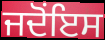
ਜਦੋਂਇਸ